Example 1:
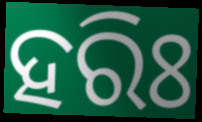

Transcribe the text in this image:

ହରିଃ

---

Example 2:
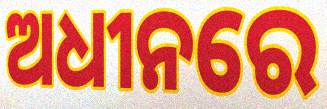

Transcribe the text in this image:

ଅଧୀନରେ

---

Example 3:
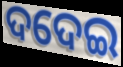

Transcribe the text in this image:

ଦଦେଇ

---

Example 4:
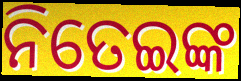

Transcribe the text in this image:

ନିତେଇଙ୍କ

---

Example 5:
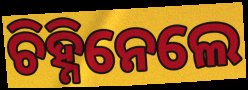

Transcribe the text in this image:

ଚିହ୍ନିନେଲେ